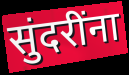
सुंदरींना